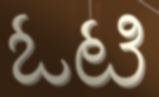
ಓಟಿ